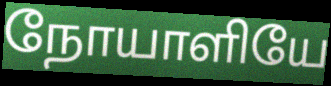
நோயாளியே